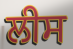
ਲੀਸ